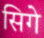
सिगे